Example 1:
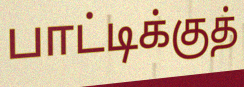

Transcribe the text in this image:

பாட்டிக்குத்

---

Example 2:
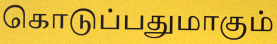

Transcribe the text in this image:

கொடுப்பதுமாகும்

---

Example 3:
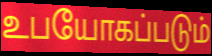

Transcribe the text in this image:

உபயோகப்படும்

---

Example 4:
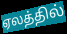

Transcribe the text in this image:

ஏலத்தில்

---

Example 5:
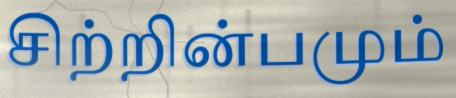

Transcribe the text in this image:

சிற்றின்பமும்